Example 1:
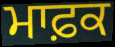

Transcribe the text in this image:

ਮਾਫ਼ਕ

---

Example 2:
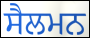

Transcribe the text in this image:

ਸੈਲਮਨ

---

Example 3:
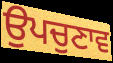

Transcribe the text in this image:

ਉਪਚੁਣਾਵ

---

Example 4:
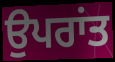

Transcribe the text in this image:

ਉਪਰਾਂਤ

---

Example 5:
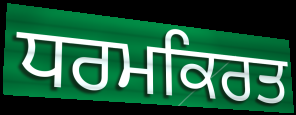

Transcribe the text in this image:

ਧਰਮਕਿਰਤ